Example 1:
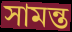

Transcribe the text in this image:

সামন্ত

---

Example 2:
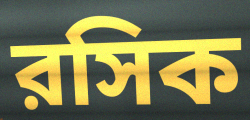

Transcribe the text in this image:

রসিক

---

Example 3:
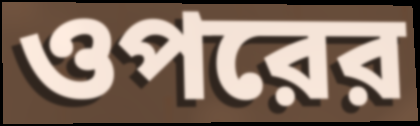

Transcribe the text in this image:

ওপরের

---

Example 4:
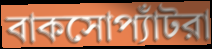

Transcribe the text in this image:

বাকসোপ্যাঁটরা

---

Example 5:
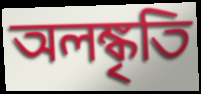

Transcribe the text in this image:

অলঙ্কৃতি